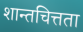
शान्तचित्तता